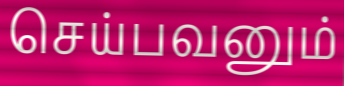
செய்பவனும்